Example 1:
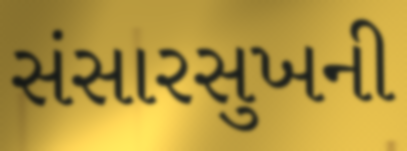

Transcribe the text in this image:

સંસારસુખની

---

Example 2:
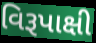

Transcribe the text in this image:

વિરૂપાક્ષી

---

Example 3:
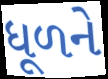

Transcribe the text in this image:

ધૂળને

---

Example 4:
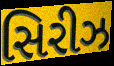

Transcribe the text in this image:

સિરીઝ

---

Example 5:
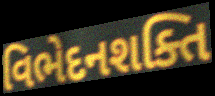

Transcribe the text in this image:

વિભેદનશક્તિ